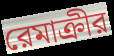
রেমাক্রীর